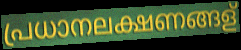
പ്രധാനലക്ഷണങ്ങള്